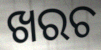
ଖରଚ